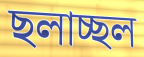
ছলাচ্ছল